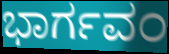
ಭಾರ್ಗವಂ